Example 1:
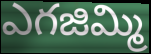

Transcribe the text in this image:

ఎగజిమ్మి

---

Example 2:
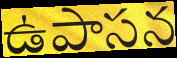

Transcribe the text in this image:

ఉపాసన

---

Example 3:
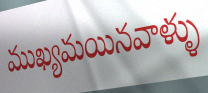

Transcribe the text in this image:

ముఖ్యమయినవాళ్ళు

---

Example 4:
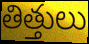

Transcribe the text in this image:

తిత్తులు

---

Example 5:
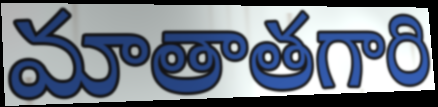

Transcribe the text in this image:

మాతాతగారి